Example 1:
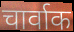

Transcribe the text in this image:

चार्वाक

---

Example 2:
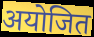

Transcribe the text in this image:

अयोजित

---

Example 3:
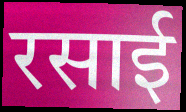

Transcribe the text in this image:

रसाई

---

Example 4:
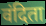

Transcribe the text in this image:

वंदिता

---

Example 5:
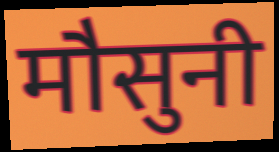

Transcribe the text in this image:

मौसुनी